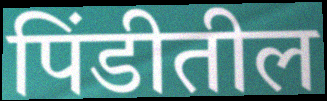
पिंडीतील